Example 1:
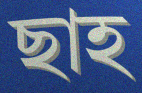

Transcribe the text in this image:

ছাহ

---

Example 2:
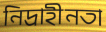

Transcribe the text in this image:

নিদ্ৰাহীনতা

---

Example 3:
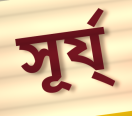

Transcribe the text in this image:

সূৰ্য্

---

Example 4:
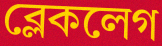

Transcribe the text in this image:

ব্লেকলেগ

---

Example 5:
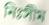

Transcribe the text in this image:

নিঃসীম